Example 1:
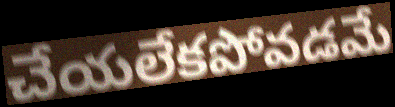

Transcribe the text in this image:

చేయలేకపోవడమే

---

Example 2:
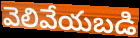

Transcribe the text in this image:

వెలివేయబడి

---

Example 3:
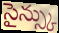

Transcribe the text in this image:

సైన్స్కు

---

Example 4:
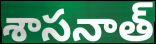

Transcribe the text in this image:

శాసనాత్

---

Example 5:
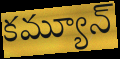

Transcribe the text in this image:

కమ్యూన్